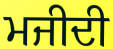
ਮਜੀਦੀ